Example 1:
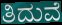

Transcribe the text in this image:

ತಿದುವೆ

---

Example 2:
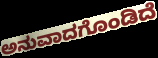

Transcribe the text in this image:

ಅನುವಾದಗೊಂಡಿದೆ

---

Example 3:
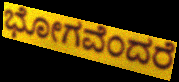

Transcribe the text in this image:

ಭೋಗವೆಂದರೆ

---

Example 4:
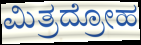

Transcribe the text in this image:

ಮಿತ್ರದ್ರೋಹ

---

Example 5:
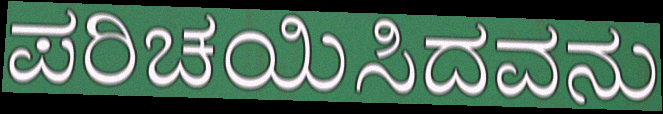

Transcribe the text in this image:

ಪರಿಚಯಿಸಿದವನು